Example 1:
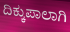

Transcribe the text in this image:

ದಿಕ್ಕುಪಾಲಾಗಿ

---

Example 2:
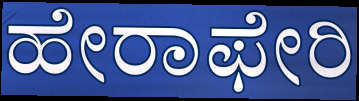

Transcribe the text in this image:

ಹೇರಾಫೇರಿ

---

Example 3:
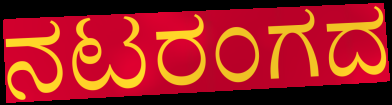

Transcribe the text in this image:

ನಟರಂಗದ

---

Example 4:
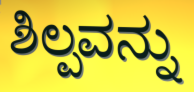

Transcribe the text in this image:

ಶಿಲ್ಪವನ್ನು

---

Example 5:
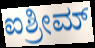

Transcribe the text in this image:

ಐಶ್ರೀಮ್